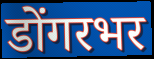
डोंगरभर